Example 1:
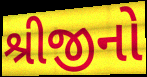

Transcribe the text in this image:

શ્રીજીનો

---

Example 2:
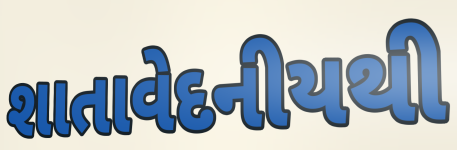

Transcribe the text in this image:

શાતાવેદનીયથી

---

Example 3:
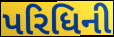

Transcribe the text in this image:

પરિધિની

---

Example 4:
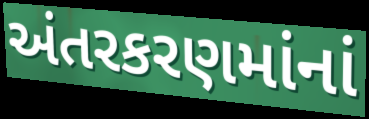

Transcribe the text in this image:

અંતરકરણમાંનાં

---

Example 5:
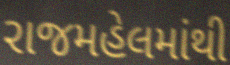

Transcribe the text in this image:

રાજમહેલમાંથી